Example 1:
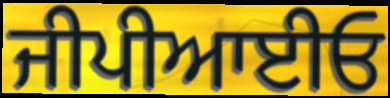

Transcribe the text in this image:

ਜੀਪੀਆਈਓ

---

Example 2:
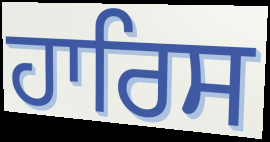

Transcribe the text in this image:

ਹਾਰਿਸ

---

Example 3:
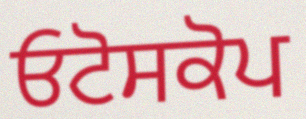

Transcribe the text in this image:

ਓਟੋਸਕੋਪ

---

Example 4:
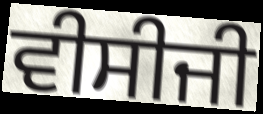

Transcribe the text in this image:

ਵੀਸੀਜੀ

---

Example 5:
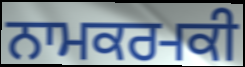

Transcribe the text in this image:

ਨਾਮਕਰ੍ਮਕੀ